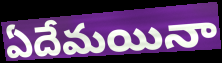
ఏదేమయినా